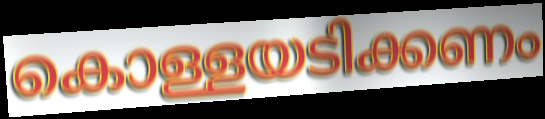
കൊള്ളയടിക്കണം